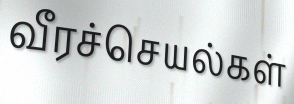
வீரச்செயல்கள்